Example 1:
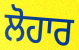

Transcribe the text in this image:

ਲੋਹਾਰ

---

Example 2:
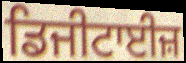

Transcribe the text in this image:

ਡਿਜੀਟਾਈਜ਼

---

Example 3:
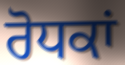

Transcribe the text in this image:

ਰੋਧਕਾਂ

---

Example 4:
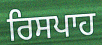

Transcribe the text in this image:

ਰਿਸਪਾਹ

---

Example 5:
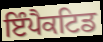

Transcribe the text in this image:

ਇੰਪੈਕਟਿਡ